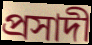
প্রসাদী